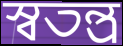
স্বতন্ত্ৰ